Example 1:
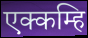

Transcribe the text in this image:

एक्कम्हि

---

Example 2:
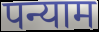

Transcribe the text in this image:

पन्याम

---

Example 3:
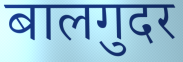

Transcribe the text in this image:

बालगुदर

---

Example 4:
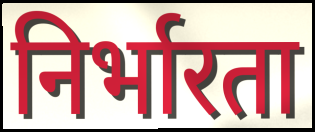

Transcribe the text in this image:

निर्भारता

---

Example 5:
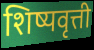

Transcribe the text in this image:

शिष्यवृत्ती